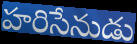
హరిసేనుడు